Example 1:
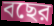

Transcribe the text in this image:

বছের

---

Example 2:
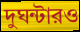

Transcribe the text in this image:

দুঘন্টারও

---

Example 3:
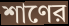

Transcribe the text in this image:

শাণের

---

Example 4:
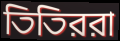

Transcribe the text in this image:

তিতিররা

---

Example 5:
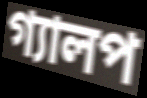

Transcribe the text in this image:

গ্যালপ